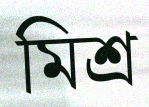
মিশ্ৰ